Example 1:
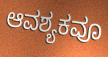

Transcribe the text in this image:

ಆವಶ್ಯಕವೂ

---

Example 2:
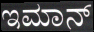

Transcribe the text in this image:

ಇಮಾನ್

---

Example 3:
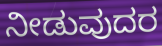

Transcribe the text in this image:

ನೀಡುವುದರ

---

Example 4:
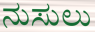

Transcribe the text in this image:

ನುಸುಲು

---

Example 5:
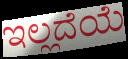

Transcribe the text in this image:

ಇಲ್ಲದೆಯೆ